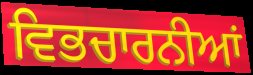
ਵਿਭਚਾਰਨੀਆਂ